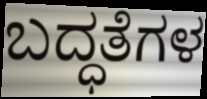
ಬದ್ಧತೆಗಳ